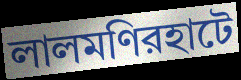
লালমণিরহাটে